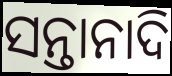
ସନ୍ତାନାଦି